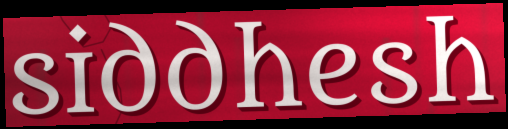
siddhesh